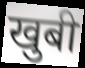
खुबी